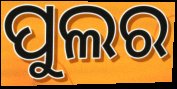
ପୁଲର